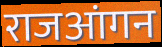
राजआंगन